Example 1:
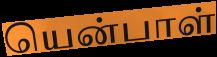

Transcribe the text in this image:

யென்பாள்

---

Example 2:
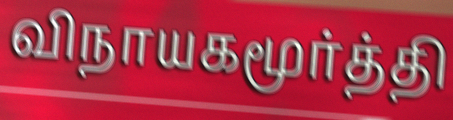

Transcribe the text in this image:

விநாயகமூர்த்தி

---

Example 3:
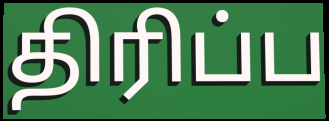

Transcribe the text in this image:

திரிப்ப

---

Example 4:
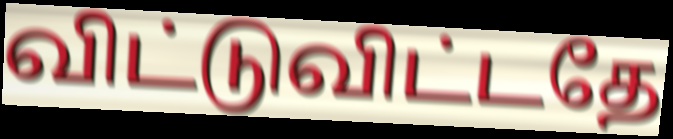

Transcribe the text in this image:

விட்டுவிட்டதே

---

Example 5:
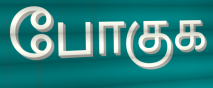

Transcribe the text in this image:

போகுக